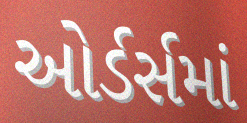
ઓર્ડર્સમાં